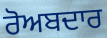
ਰੋਅਬਦਾਰ